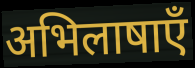
अभिलाषाएँ